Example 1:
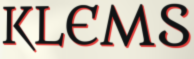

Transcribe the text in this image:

KLEMS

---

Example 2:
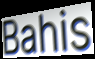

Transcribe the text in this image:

Bahis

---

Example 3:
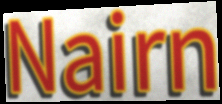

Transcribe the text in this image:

Nairn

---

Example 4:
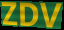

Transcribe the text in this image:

ZDV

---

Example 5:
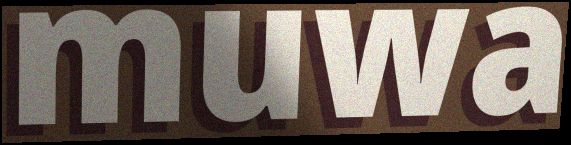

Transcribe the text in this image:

muwa